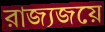
রাজ্যজয়ে